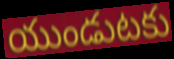
యుండుటకు